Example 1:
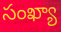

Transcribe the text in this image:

సంఖ్యా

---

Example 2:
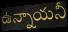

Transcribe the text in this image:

ఉన్నాయనీ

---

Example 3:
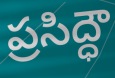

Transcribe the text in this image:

ప్రసిద్ధౌ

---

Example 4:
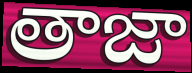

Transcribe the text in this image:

తాజా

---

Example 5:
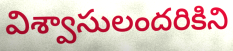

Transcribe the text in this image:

విశ్వాసులందరికిని